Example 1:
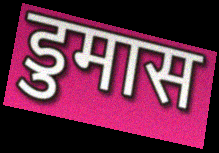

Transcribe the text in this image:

डुमास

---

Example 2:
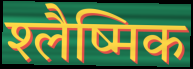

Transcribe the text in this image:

श्लैष्मिक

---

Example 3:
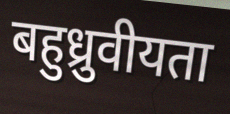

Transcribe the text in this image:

बहुध्रुवीयता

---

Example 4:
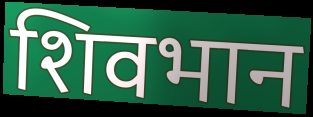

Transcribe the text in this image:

शिवभान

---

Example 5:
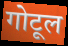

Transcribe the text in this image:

गोटूल